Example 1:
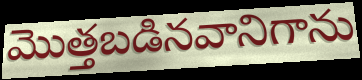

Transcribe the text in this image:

మొత్తబడినవానిగాను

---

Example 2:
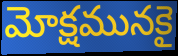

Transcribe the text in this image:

మోక్షమునకై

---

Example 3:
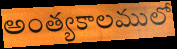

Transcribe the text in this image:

అంత్యకాలములో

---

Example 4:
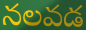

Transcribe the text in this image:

నలవడ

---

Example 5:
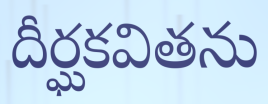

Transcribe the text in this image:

దీర్ఘకవితను